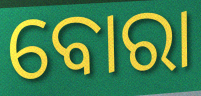
ବୋରା